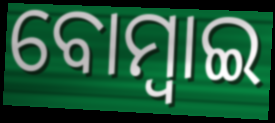
ବୋମ୍ୱାଇ